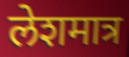
लेशमात्र